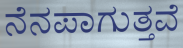
ನೆನಪಾಗುತ್ತವೆ